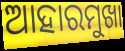
ଆହାରମୁଖା